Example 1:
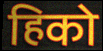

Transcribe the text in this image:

हिको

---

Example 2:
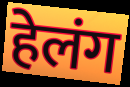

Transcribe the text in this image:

हेलंग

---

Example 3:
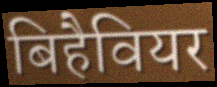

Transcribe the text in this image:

बिहैवियर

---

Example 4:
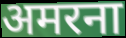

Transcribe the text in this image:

अमरना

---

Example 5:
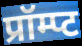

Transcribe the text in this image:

प्रॉम्प्ट